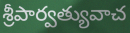
శ్రీపార్వత్యువాచ